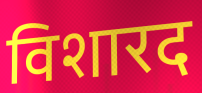
विशारद